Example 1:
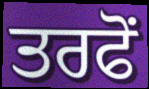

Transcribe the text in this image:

ਤਰਫੋਂ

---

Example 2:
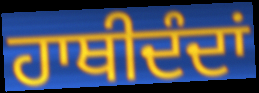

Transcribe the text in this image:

ਹਾਥੀਦੰਦਾਂ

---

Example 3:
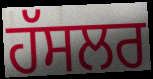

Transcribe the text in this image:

ਹੱਸਲਰ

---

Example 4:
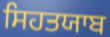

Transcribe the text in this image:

ਸਿਹਤਯਾਬ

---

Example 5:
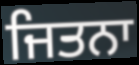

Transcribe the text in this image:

ਜਿਤਨਾ